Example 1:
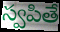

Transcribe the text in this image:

స్వపితే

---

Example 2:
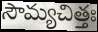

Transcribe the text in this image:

సౌమ్యచిత్తః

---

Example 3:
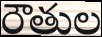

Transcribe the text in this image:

రౌతుల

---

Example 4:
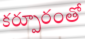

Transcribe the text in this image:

కర్పూరంతో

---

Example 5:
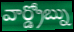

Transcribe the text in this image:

వార్డ్రోబ్ను